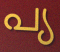
പ്യ